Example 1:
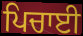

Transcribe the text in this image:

ਪਿਚਾਈ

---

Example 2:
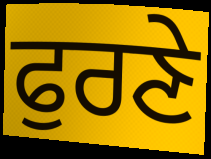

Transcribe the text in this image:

ਫੁਰਣੇ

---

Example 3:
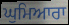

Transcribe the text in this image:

ਘੁਮਿਆਰਾ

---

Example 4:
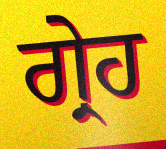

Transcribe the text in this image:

ਗ੍ਰੇਹ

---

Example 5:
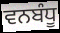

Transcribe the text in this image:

ਵਨਬੰਧੂ